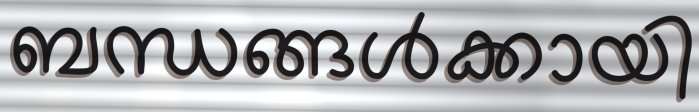
ബന്ധങ്ങൾക്കായി